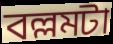
বল্লমটা